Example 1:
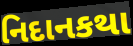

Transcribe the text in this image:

નિદાનકથા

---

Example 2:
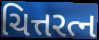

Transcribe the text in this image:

ચિત્તરત્ન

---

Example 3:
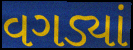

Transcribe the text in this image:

વગડ્યાં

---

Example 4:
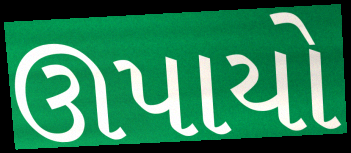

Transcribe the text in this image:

ઊપાયો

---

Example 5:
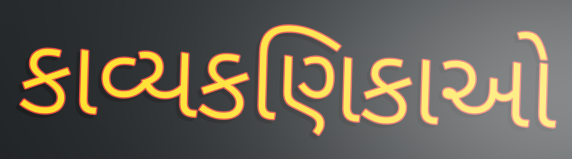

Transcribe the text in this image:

કાવ્યકણિકાઓ